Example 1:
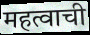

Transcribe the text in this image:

महत्वाची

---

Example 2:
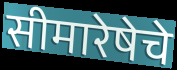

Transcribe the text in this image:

सीमारेषेचे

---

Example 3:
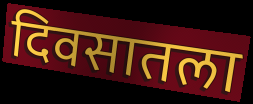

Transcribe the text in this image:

दिवसातला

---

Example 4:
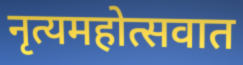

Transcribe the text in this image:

नृत्यमहोत्सवात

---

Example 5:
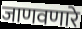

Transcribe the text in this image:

जाणवणारे